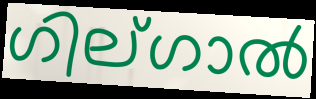
ഗില്ഗാൽ